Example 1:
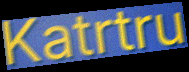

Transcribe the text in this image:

Katrtru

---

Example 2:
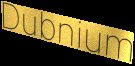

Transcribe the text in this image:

Dubnium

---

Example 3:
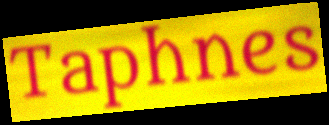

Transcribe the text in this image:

Taphnes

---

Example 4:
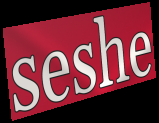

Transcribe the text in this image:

seshe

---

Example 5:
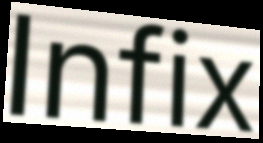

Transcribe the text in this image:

Infix